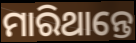
ମାରିଥାନ୍ତେ